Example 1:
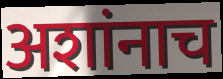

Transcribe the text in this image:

अशांनाच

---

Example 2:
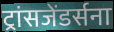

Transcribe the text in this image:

ट्रांसजेंडर्सना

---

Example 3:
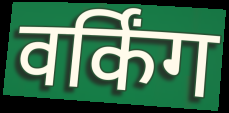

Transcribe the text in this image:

वर्किंग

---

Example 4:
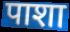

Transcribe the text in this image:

पाशा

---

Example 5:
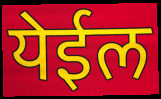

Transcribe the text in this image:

येईल